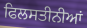
ਫਿਲਸਤੀਨੀਆਂ